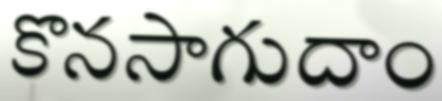
కొనసాగుదాం